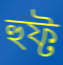
হুফ্ট